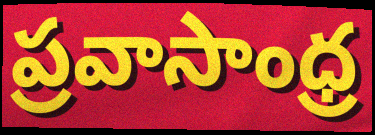
ప్రవాసాంధ్ర